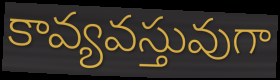
కావ్యవస్తువుగా